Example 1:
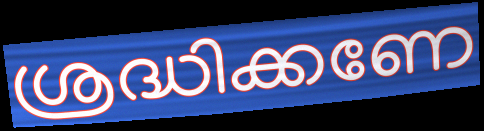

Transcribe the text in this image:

ശ്രദ്ധിക്കണേ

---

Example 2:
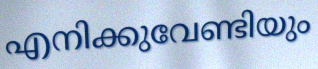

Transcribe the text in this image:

എനിക്കുവേണ്ടിയും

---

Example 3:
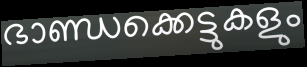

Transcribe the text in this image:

ഭാണ്ഡക്കെട്ടുകളും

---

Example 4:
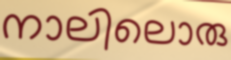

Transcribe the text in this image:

നാലിലൊരു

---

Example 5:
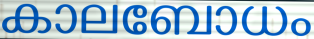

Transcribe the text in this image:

കാലബോധം